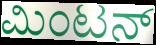
ಮಿಂಟನ್